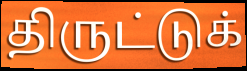
திருட்டுக்